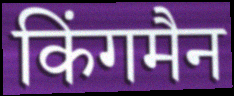
किंगमैन